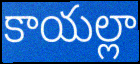
కాయల్లా